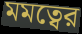
মমত্বের